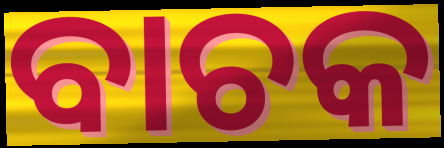
ବାଚକ